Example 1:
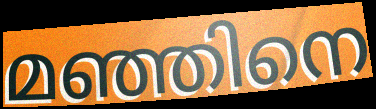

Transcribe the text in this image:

മഞ്ഞിനെ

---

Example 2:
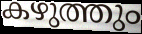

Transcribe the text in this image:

കഴുത്തും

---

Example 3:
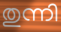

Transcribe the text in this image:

തുന്നി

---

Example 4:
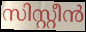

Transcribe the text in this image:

സിസ്റ്റീൻ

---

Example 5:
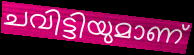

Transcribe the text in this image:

ചവിട്ടിയുമാണ്